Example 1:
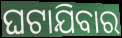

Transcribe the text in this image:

ଘଟାଯିବାର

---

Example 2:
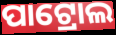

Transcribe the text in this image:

ପାଟ୍ରୋଲ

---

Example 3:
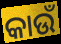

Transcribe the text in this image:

କାଉଁ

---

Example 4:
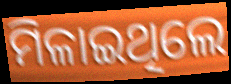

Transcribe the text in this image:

ମିଳାଇଥିଲେ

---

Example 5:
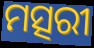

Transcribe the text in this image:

ମତ୍ସରୀ